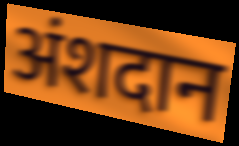
अंशदान